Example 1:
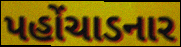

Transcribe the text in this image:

પહોંચાડનાર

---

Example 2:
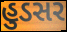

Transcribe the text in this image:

હુડસર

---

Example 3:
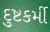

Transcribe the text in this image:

દુષ્ટકર્મી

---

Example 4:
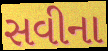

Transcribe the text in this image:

સવીના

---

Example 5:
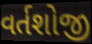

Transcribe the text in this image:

વર્તશોજી